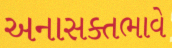
અનાસક્તભાવે